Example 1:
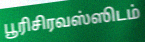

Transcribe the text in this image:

பூரிசிரவஸ்ஸிடம்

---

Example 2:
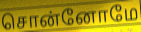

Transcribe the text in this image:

சொன்னோமே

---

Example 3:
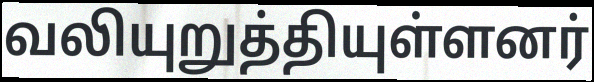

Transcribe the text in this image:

வலியுறுத்தியுள்ளனர்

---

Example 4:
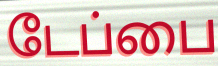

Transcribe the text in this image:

டேப்பை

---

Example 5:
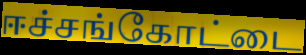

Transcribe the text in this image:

ஈச்சங்கோட்டை